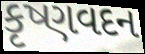
કૃષ્ણવદન